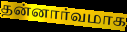
தன்னார்வமாக